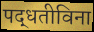
पद्धतीविना